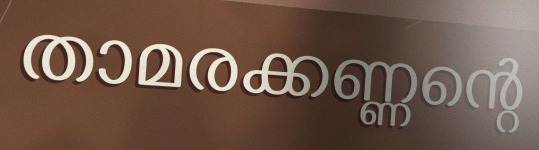
താമരക്കണ്ണന്റെ